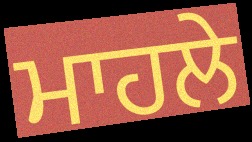
ਮਾਹਲੇ